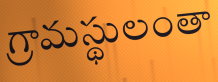
గ్రామస్థులంతా